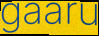
gaaru